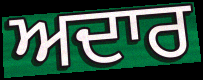
ਅਦਾਰ